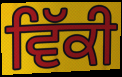
ਵਿੱਕੀ